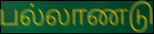
பல்லாணடு